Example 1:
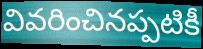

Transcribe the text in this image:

వివరించినప్పటికీ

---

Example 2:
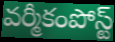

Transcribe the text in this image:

వర్మీకంపోస్ట్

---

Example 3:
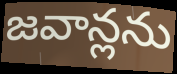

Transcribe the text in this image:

జవాన్లను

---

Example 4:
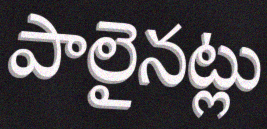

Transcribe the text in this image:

పాలైనట్లు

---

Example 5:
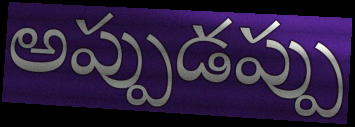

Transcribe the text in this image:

అప్పుడప్పు